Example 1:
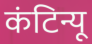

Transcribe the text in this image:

कंटिन्यू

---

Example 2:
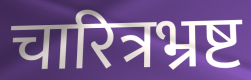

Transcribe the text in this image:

चारित्रभ्रष्ट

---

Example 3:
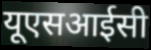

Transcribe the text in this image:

यूएसआईसी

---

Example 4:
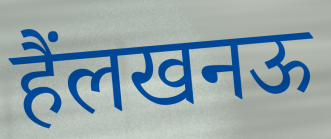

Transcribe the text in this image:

हैंलखनऊ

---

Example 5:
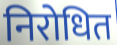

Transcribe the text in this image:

निरोधित